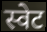
स्वेट